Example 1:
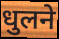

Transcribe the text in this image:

धुलने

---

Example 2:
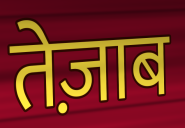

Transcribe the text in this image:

तेज़ाब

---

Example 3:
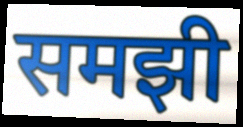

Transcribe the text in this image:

समझी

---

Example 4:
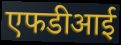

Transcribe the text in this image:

एफडीआई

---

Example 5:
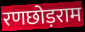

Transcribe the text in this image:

रणछोड़राम